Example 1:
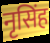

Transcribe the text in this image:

नृसिंह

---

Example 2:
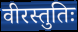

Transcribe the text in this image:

वीरस्तुतिः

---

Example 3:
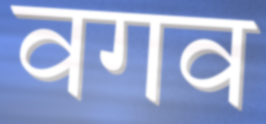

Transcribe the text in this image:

वगव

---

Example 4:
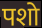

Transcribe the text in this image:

पशो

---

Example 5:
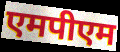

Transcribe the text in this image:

एमपीएम